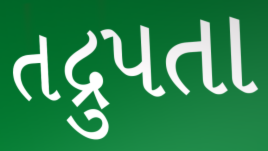
તદ્રુપતા